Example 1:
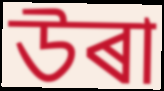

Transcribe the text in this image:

উৰা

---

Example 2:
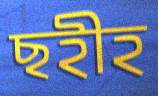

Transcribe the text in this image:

ছহীহ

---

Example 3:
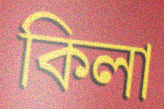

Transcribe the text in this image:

কিলা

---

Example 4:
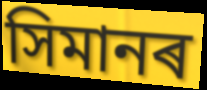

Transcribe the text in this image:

সিমানৰ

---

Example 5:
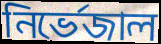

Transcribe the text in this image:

নিৰ্ভেজাল